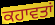
ਕਹਾਵਤਾਂ